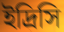
ইদ্রিসি